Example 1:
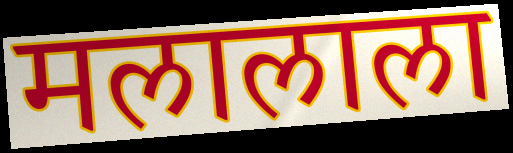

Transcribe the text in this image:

मलालाला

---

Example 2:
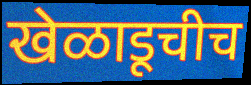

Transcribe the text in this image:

खेळाडूचीच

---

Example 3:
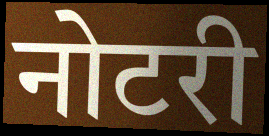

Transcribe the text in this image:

नोटरी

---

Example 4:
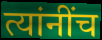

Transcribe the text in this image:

त्यांनींच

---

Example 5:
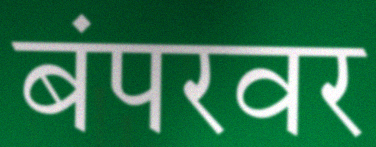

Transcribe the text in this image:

बंपरवर